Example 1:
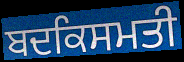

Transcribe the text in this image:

ਬਦਕਿਸਮਤੀ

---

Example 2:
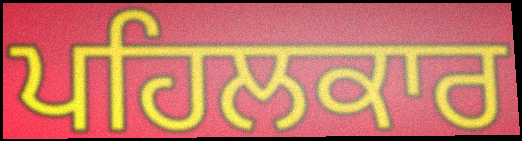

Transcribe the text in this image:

ਪਹਿਲਕਾਰ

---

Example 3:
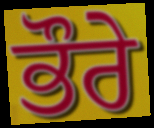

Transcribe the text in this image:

ਭੌਰੇ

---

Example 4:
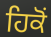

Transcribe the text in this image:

ਹਿਕੋਂ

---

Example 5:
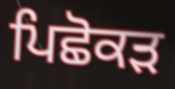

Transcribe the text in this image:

ਪਿਛੋਕੜ